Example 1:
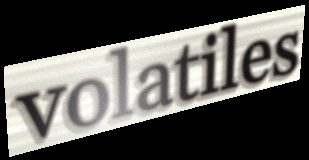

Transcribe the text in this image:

volatiles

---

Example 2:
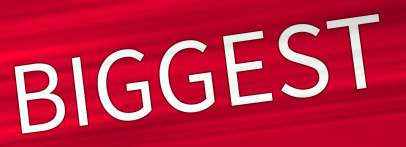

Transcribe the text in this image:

BIGGEST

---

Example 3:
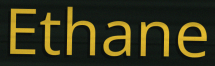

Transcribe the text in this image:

Ethane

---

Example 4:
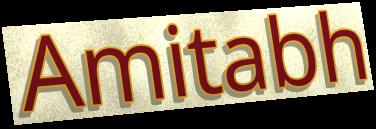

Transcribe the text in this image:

Amitabh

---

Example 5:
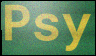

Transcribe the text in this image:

Psy